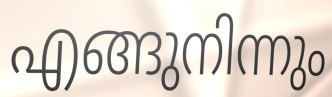
എങ്ങുനിന്നും